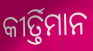
କୀର୍ତ୍ତିମାନ